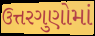
ઉત્તરગુણોમાં